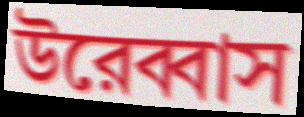
উরেব্বাস